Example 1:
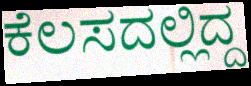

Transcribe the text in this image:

ಕೆಲಸದಲ್ಲಿದ್ದ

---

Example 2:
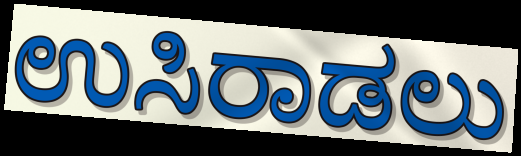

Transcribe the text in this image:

ಉಸಿರಾಡಲು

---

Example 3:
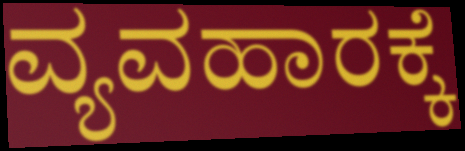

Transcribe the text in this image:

ವ್ಯವಹಾರಕ್ಕೆ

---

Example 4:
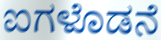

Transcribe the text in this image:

ಐಗಳೊಡನೆ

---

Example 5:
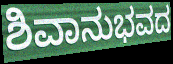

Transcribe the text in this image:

ಶಿವಾನುಭವದ